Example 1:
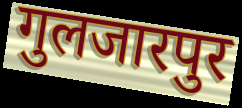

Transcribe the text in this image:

गुलजारपुर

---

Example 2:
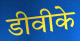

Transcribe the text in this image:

डीवीके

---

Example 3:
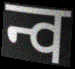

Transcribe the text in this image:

न्व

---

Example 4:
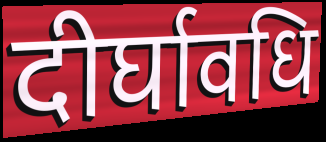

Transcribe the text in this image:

दीर्घावधि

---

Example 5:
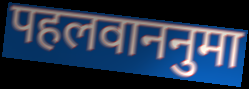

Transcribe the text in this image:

पहलवाननुमा